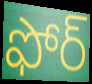
ఫోర్